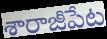
శారాజీపేట